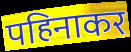
पहिनाकर